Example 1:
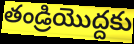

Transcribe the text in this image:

తండ్రియొద్దకు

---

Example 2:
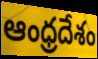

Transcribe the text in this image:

ఆంధ్రదేశం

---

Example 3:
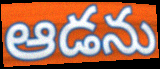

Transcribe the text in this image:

ఆడను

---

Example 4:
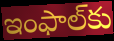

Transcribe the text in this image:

ఇంఫాల్‌కు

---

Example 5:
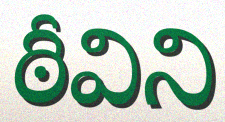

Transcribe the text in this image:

ఠీవిని